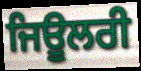
ਜਿਊਲਰੀ